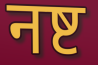
नष्ट